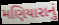
મણિયારાનું